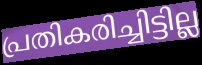
പ്രതികരിച്ചിട്ടില്ല